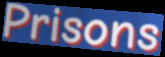
Prisons